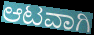
ಆಟವಾಗಿ